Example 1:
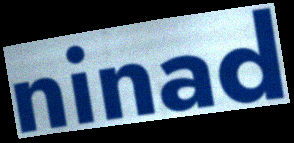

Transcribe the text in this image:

ninad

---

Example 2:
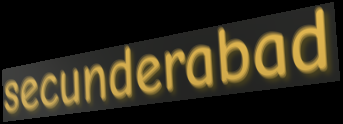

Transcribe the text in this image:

secunderabad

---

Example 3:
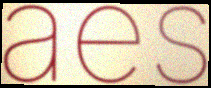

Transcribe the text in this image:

aes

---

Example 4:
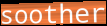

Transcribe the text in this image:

soother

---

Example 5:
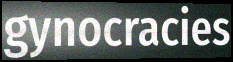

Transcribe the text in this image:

gynocracies